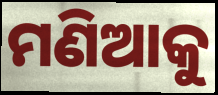
ମଣିଆକୁ